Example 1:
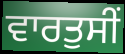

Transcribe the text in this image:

ਵਾਰਤੁਸੀਂ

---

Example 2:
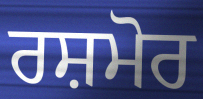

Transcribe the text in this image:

ਰਸ਼ਮੋਰ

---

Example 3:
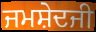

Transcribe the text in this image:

ਜਮਸ਼ੇਦਜੀ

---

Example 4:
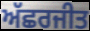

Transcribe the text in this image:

ਅੱਛਰਜੀਤ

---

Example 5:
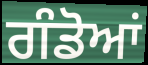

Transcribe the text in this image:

ਗੰਡੋਆਂ